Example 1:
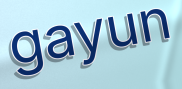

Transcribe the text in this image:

gayun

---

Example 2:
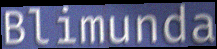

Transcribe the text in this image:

Blimunda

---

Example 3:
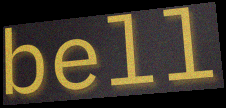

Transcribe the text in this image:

bell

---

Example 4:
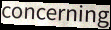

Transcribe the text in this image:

concerning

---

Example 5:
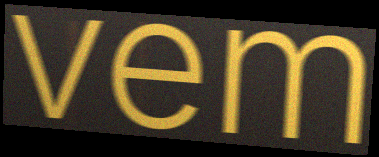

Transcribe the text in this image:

vem